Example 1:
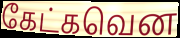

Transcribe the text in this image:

கேட்கவென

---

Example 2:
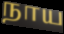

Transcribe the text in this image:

நாய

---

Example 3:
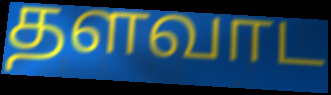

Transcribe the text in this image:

தளவாட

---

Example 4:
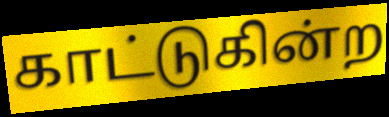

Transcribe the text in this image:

காட்டுகின்ற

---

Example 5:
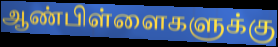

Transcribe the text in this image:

ஆண்பிள்ளைகளுக்கு